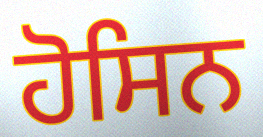
ਹੋਸਿਨ